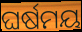
ଘର୍ଷମୟ